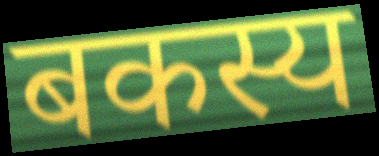
बकस्य